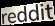
reddit